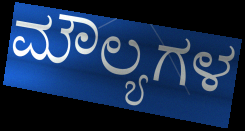
ಮೌಲ್ಯಗಳ